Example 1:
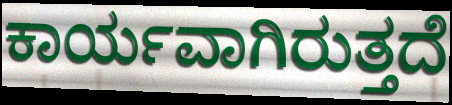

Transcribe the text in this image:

ಕಾರ್ಯವಾಗಿರುತ್ತದೆ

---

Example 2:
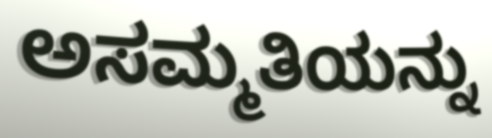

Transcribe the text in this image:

ಅಸಮ್ಮತಿಯನ್ನು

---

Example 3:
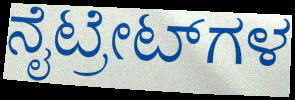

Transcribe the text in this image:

ನೈಟ್ರೇಟ್‌ಗಳ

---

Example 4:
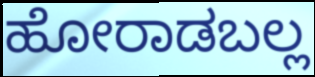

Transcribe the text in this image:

ಹೋರಾಡಬಲ್ಲ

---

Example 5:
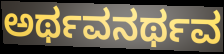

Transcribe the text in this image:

ಅರ್ಥವನರ್ಥವ